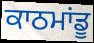
ਕਾਠਮਾਂਡੂ